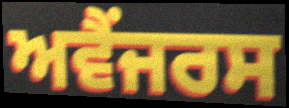
ਅਵੈਂਜਰਸ